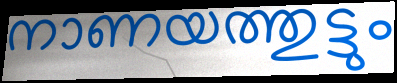
നാണയത്തുട്ടും